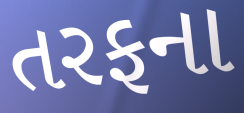
તરફના